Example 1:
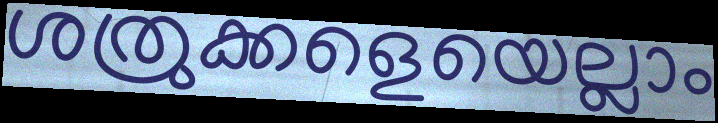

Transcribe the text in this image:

ശത്രുക്കളെയെല്ലാം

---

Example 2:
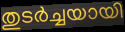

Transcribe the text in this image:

തുടർച്ചയായി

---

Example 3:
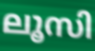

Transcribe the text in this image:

ലൂസി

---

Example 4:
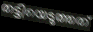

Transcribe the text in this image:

തട്ടിയെടുത്തത്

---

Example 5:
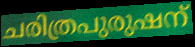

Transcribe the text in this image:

ചരിത്രപുരുഷന്